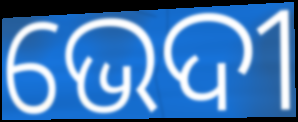
ଭେଦୀ